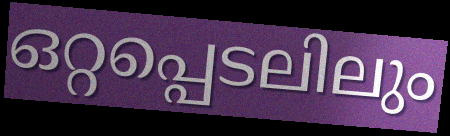
ഒറ്റപ്പെടലിലും